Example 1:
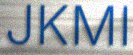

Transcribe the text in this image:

JKMI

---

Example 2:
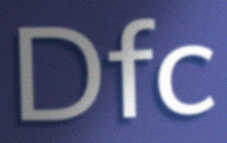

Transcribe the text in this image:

Dfc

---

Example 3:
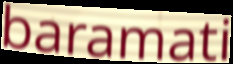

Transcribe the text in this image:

baramati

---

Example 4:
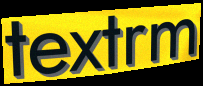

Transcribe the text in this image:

textrm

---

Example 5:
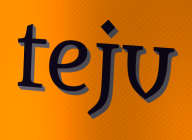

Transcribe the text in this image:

teju